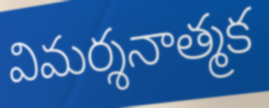
విమర్శనాత్మక